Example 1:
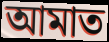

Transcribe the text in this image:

আমাত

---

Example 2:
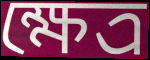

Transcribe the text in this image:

ক্ষেত্ৰ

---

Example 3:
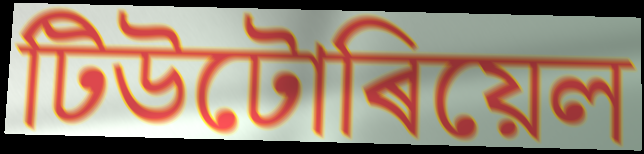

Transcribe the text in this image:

টিউটোৰিয়েল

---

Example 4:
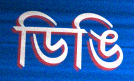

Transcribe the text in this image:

ডিঙি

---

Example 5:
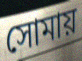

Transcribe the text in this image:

সোমায়